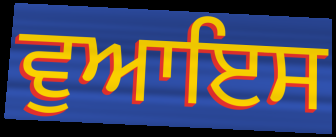
ਵੁਆਇਸ